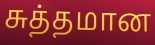
சுத்தமான